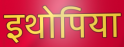
इथोपिया